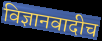
विज्ञानवादीच